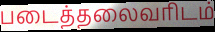
படைத்தலைவரிடம்